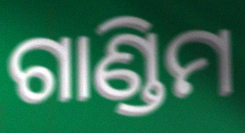
ଗାଣ୍ଡିମ